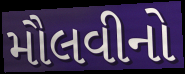
મૌલવીનો